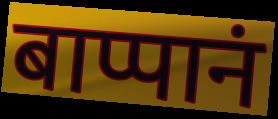
बाप्पानं